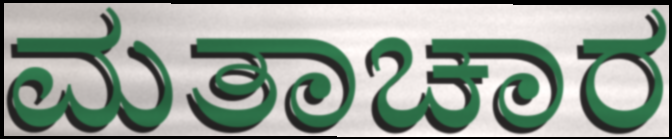
ಮತಾಚಾರ